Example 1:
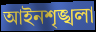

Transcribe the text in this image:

আইনশৃঙ্খলা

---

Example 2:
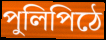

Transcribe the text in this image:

পুলিপিঠে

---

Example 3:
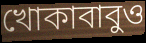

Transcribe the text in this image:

খোকাবাবুও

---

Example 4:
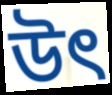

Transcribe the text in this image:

উৎ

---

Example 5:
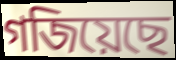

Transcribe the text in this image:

গজিয়েছে